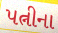
પત્નીના